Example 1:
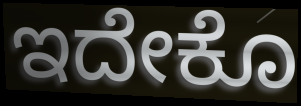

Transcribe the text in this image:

ಇದೇಕೊ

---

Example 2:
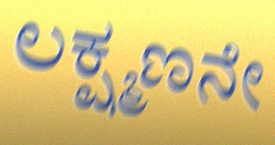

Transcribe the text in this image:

ಲಕ್ಷ್ಮಣನೇ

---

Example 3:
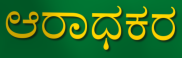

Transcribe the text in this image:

ಆರಾಧಕರ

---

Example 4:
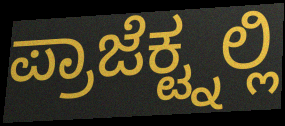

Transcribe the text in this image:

ಪ್ರಾಜೆಕ್ಟ್ನಲ್ಲಿ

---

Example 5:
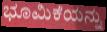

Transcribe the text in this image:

ಭೂಮಿಕೆಯನ್ನು